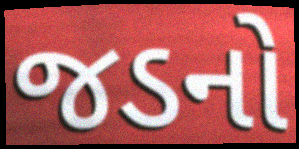
જડનો